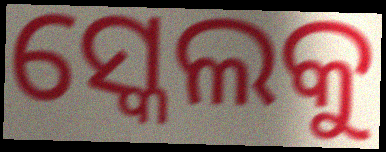
ସ୍କେଲକୁ